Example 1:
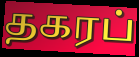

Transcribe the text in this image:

தகரப்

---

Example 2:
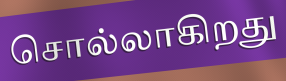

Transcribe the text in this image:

சொல்லாகிறது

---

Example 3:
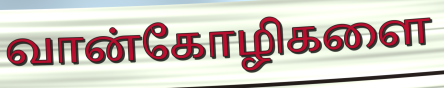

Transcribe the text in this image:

வான்கோழிகளை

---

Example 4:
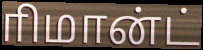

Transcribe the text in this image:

ரிமான்ட்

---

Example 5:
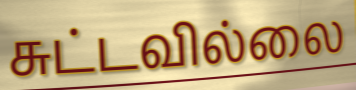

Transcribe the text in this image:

சுட்டவில்லை